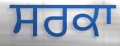
ਸਰਕਾ